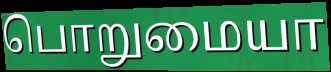
பொறுமையா